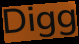
Digg